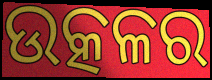
ଉତ୍କଳର